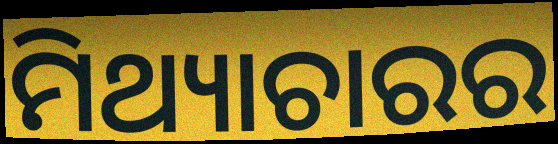
ମିଥ୍ୟାଚାରର